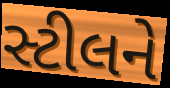
સ્ટીલને